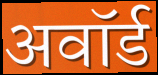
अवॉर्ड